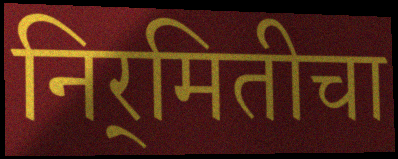
निर्मितीचा